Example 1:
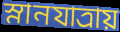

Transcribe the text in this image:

স্নানযাত্রায়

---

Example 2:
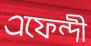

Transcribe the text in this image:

এফেন্দী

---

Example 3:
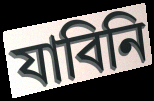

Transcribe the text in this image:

যাবিনি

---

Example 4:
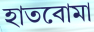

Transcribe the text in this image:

হাতবোমা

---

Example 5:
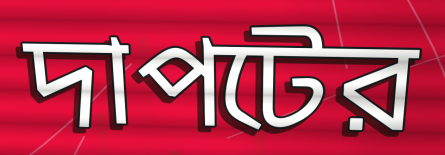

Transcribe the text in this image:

দাপটের